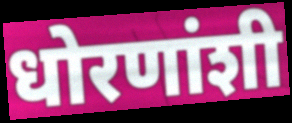
धोरणांशी